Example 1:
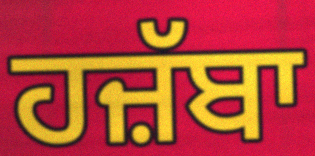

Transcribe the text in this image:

ਹਜ਼ੱਬਾ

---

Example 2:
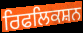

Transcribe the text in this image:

ਰਿਫਲਿਕਸ਼ਨ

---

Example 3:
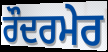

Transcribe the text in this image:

ਰੌਦਰਮੇਰ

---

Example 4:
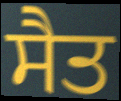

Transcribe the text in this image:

ਸੈਤ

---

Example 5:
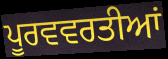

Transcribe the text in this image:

ਪੂਰਵਵਰਤੀਆਂ